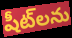
షీట్‌లను